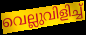
വെല്ലുവിളിച്ച്